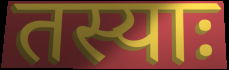
तस्याः